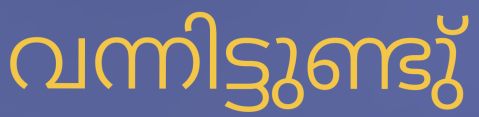
വന്നിട്ടുണ്ടു്